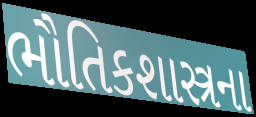
ભૌતિકશાસ્ત્રના